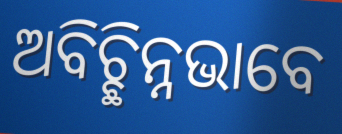
ଅବିଚ୍ଛିନ୍ନଭାବେ